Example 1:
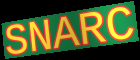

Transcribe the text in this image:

SNARC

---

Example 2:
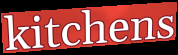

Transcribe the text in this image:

kitchens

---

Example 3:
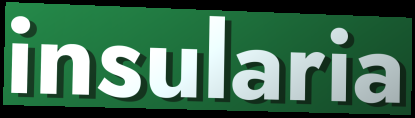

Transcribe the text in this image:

insularia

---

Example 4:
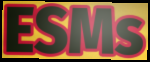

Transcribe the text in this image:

ESMs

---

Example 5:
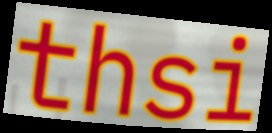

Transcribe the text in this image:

thsi